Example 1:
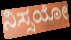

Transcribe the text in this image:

ನಿಸ್ಸಯೋ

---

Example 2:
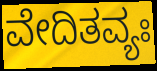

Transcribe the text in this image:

ವೇದಿತವ್ಯಃ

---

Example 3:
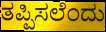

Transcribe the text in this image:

ತಪ್ಪಿಸಲೆಂದು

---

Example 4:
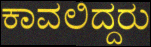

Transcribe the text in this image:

ಕಾವಲಿದ್ದರು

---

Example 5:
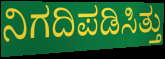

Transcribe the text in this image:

ನಿಗದಿಪಡಿಸಿತ್ತು